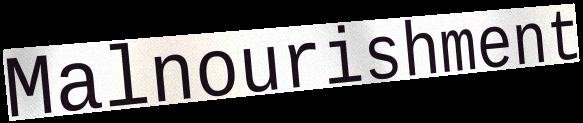
Malnourishment